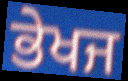
ਭੇਖਜ